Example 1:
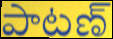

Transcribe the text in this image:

పాటణ్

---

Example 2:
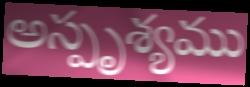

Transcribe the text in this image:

అస్పృశ్యము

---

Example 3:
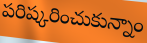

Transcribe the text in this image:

పరిష్కరించుకున్నాం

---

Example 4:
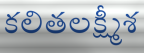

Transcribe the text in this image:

కలితలక్ష్మీశ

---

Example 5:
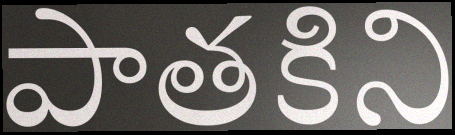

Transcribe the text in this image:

పాతకిని